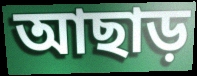
আছাড়